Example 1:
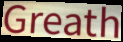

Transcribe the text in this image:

Greath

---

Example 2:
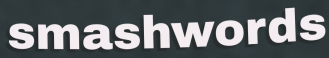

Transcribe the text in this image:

smashwords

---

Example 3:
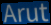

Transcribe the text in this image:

Arut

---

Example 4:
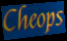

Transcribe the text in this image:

Cheops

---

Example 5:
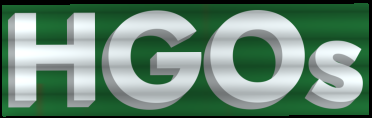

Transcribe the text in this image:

HGOs